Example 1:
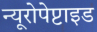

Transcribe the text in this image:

न्यूरोपेप्टाइड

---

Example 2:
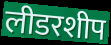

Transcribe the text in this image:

लीडरशीप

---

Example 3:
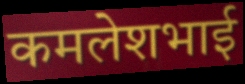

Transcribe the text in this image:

कमलेशभाई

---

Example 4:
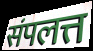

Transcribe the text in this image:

संपलत्त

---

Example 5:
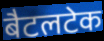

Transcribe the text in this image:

बैटलटेक